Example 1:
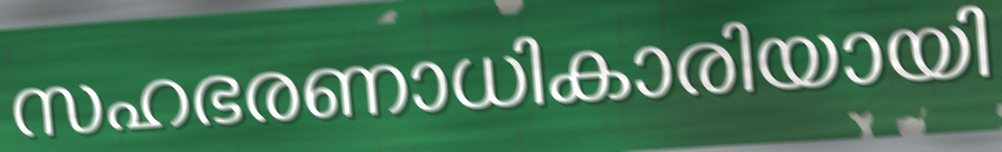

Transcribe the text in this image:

സഹഭരണാധികാരിയായി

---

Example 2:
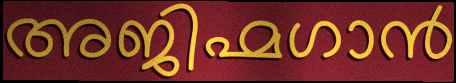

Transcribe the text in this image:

അജിഹ്മഗാൻ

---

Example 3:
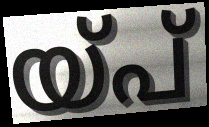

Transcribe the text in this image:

യ്പ്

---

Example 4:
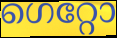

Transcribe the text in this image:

ഗെറ്റോ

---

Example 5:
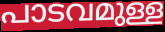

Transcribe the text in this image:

പാടവമുള്ള